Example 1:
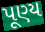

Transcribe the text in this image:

પૂણ્ય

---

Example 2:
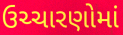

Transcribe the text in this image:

ઉચ્ચારણોમાં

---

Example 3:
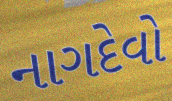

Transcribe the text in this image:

નાગદેવો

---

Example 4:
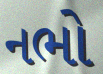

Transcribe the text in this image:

નભો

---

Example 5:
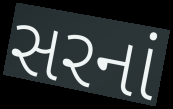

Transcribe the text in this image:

સરનાં